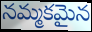
నమ్మకమైన